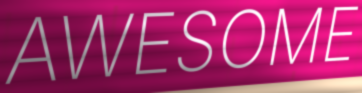
AWESOME